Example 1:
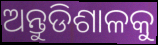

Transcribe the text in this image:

ଅନ୍ତୁଡିଶାଳକୁ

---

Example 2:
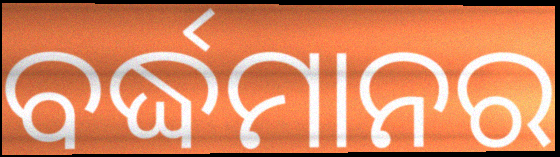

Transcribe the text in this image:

ବର୍ଦ୍ଧମାନର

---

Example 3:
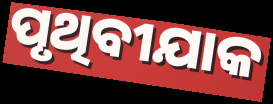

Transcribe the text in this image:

ପୃଥିବୀଯାକ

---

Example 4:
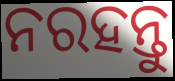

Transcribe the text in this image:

ନରହନ୍ତୁ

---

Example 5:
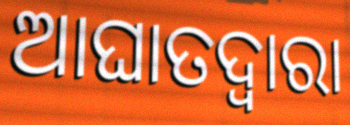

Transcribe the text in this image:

ଆଘାତଦ୍ୱାରା